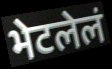
भेटलेलं